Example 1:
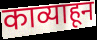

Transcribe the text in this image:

काव्याहून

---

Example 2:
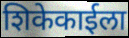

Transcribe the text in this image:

शिकेकाईला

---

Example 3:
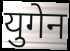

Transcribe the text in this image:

युगेन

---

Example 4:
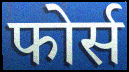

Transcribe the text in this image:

फोर्स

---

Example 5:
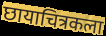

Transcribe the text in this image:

छायाचित्रकला